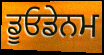
ਡੂਓਡੇਨਮ